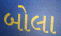
બોલા